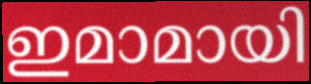
ഇമാമായി